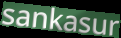
sankasur